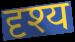
दृश्‍य